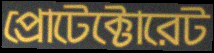
প্রোটেক্টোরেট